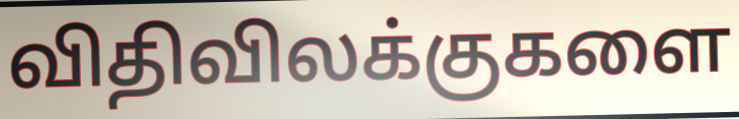
விதிவிலக்குகளை